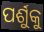
ପର୍ଶୁକୁ